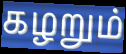
கழறும்